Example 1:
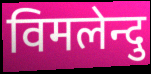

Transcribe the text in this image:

विमलेन्दु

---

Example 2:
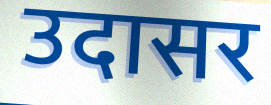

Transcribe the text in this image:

उदासर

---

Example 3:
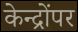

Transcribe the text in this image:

केन्द्रोंपर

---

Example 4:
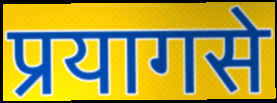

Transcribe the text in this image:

प्रयागसे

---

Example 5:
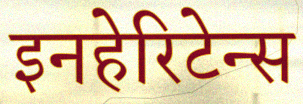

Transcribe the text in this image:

इनहेरिटेन्स